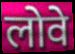
लोवे